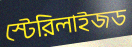
স্টেরিলাইজড